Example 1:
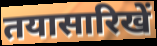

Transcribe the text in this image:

तयासारिखें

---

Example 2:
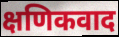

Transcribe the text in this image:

क्षणिकवाद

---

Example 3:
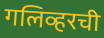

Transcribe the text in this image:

गलिव्हरची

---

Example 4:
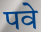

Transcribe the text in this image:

पवे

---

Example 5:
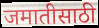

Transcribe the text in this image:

जमातीसाठी